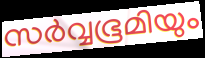
സർവ്വഭൂമിയും